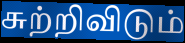
சுற்றிவிடும்